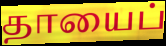
தாயைப்